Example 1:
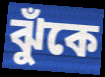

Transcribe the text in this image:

ঝুঁকে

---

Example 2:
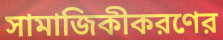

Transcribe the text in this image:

সামাজিকীকরণের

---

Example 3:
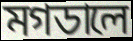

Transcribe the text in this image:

মগডালে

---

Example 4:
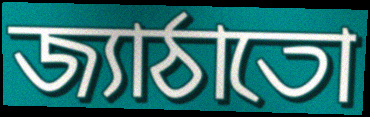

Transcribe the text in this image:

জ্যাঠাতো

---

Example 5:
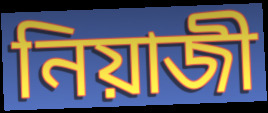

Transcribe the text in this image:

নিয়াজী